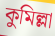
কুমিল্লা